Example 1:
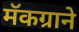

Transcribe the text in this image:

मॅकग्राने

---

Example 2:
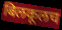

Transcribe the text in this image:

बिलकूलच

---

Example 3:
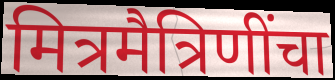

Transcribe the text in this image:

मित्रमैत्रिणींचा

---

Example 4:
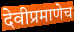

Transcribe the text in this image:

देवीप्रमाणेच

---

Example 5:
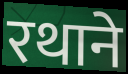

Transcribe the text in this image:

रथाने